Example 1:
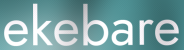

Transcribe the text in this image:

ekebare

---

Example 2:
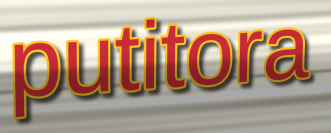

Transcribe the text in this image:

putitora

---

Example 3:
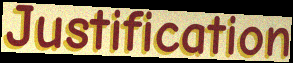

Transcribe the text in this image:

Justification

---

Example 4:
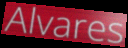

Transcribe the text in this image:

Alvares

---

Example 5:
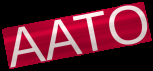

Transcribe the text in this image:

AATO